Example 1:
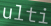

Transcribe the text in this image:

ulti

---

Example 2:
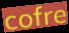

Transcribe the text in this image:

cofre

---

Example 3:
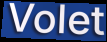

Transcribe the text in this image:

Volet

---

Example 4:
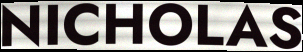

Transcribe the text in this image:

NICHOLAS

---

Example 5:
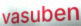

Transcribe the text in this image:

vasuben